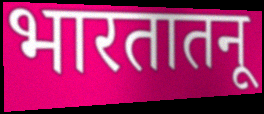
भारतातनू